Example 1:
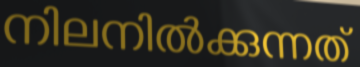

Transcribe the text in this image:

നിലനിൽക്കുന്നത്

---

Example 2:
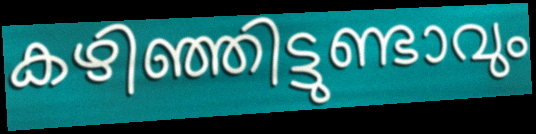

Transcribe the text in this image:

കഴിഞ്ഞിട്ടുണ്ടാവും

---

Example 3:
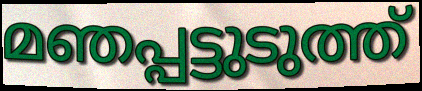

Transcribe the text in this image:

മഞപ്പട്ടുടുത്ത്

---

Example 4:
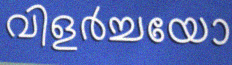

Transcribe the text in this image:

വിളർച്ചയോ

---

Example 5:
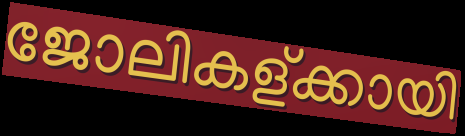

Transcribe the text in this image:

ജോലികള്ക്കായി